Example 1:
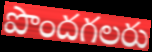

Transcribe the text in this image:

పొందగలరు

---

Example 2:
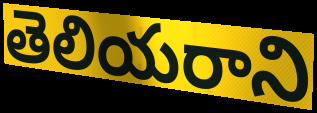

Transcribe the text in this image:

తెలియరాని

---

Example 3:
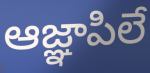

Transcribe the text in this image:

ఆజ్ఞాపిలే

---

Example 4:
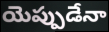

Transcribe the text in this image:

యెప్పుడేనా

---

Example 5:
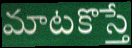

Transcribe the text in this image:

మాటకొస్తే